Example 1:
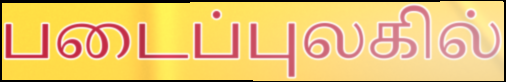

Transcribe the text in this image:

படைப்புலகில்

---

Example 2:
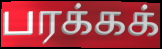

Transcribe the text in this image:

பரக்கக்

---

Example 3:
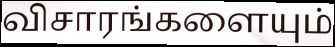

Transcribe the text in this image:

விசாரங்களையும்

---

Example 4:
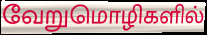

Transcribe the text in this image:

வேறுமொழிகளில்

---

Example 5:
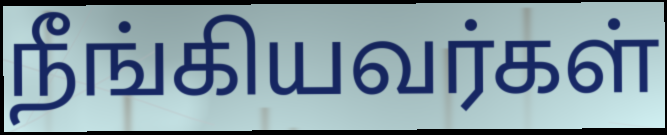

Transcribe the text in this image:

நீங்கியவர்கள்